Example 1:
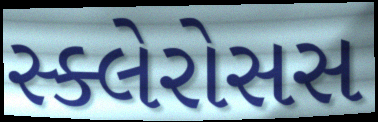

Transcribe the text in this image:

સ્ક્લેરોસસ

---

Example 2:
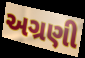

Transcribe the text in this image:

અગ્રણી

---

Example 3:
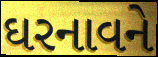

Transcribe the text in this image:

ઘરનાવને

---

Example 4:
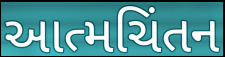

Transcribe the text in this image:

આત્મચિંતન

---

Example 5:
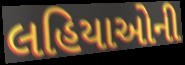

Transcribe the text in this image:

લહિયાઓની